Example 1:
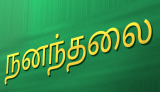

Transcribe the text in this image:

நனந்தலை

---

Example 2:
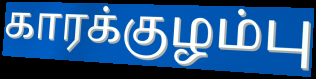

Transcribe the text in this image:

காரக்குழம்பு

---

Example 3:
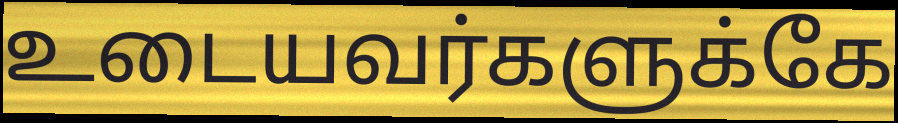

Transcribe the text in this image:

உடையவர்களுக்கே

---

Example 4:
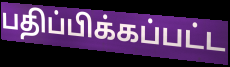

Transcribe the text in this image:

பதிப்பிக்கப்பட்ட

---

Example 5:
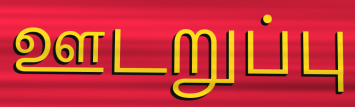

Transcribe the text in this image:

ஊடறுப்பு